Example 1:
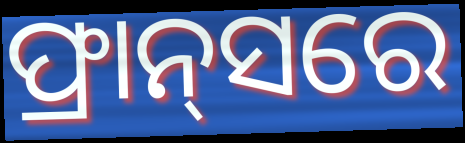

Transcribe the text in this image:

ଫ୍ରାନ୍‌ସରେ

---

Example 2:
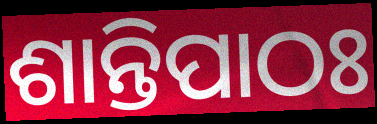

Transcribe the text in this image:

ଶାନ୍ତିପାଠଃ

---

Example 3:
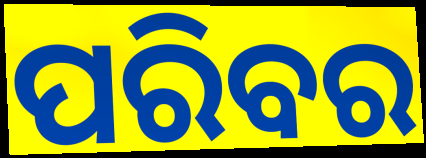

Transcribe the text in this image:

ପରିବର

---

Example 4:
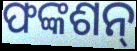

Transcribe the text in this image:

ଫଙ୍କଶନ୍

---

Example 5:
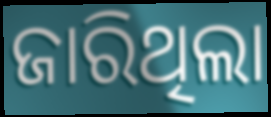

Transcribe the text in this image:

ଜାରିଥିଲା